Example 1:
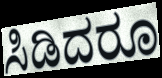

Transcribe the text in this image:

ಸಿಡಿದರೂ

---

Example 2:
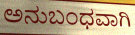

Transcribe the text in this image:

ಅನುಬಂಧವಾಗಿ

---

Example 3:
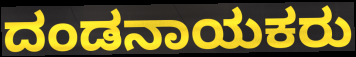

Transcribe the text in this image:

ದಂಡನಾಯಕರು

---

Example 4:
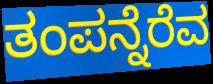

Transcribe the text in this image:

ತಂಪನ್ನೆರೆವ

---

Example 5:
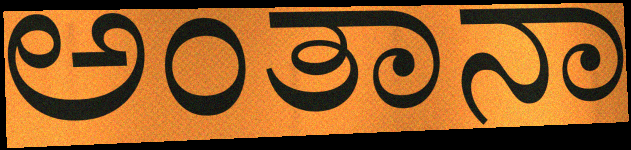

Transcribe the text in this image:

ಅಂತಾನಾ